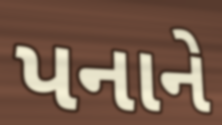
પનાને